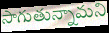
సాగుతున్నామని